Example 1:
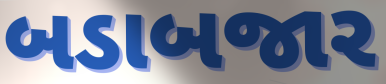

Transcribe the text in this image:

બડાબજાર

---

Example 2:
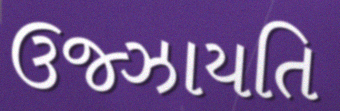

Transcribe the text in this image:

ઉજ્ઝાયતિ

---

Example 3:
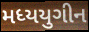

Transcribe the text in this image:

મધ્યયુગીન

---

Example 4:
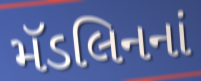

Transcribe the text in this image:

મૅડલિનનાં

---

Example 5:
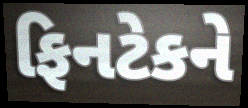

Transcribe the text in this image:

ફિનટેકને